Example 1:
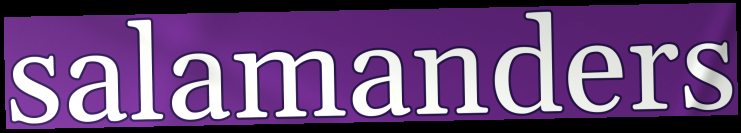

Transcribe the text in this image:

salamanders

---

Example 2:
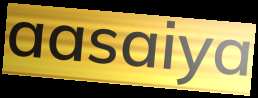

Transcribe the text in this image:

aasaiya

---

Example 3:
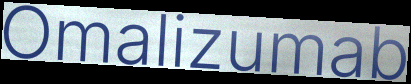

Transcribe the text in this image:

Omalizumab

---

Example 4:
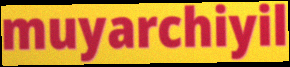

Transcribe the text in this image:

muyarchiyil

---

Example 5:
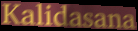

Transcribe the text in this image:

Kalidasana